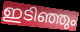
ഇടിഞ്ഞും